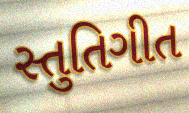
સ્તુતિગીત